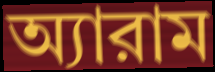
অ্যারাম